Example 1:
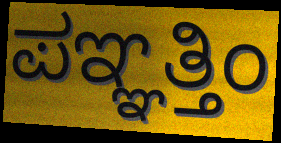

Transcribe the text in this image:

ಪಞ್ಞತ್ತಿಂ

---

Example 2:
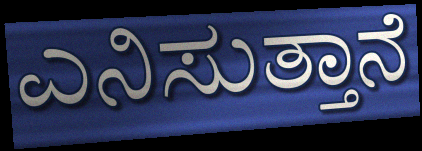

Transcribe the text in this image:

ಎನಿಸುತ್ತಾನೆ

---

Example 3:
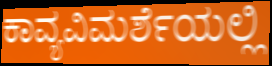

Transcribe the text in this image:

ಕಾವ್ಯವಿಮರ್ಶೆಯಲ್ಲಿ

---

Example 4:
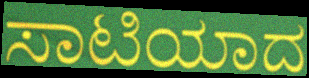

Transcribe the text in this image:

ಸಾಟಿಯಾದ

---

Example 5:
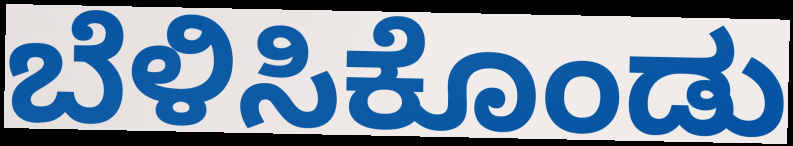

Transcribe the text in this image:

ಬೆಳಿಸಿಕೊಂಡು